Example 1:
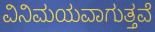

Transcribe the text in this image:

ವಿನಿಮಯವಾಗುತ್ತವೆ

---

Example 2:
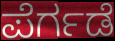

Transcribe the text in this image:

ಪೆರ್ಗಡೆ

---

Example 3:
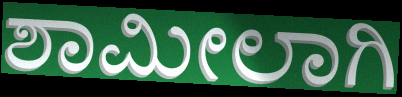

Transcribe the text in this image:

ಶಾಮೀಲಾಗಿ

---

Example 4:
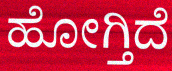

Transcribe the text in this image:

ಹೋಗ್ತಿದೆ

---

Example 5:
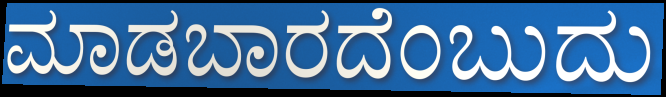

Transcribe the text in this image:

ಮಾಡಬಾರದೆಂಬುದು